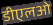
डीएलओ